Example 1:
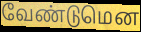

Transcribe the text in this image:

வேண்டுமென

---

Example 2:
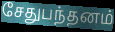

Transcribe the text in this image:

சேதுபந்தனம்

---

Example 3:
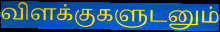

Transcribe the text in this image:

விளக்குகளுடனும்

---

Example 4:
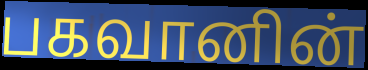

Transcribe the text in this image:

பகவானின்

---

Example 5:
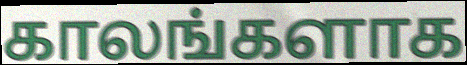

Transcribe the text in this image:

காலங்களாக